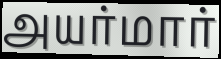
அயர்மார்